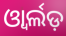
ଓ୍ୱାର୍ଲଡ଼